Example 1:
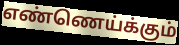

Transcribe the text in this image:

எண்ணெய்க்கும்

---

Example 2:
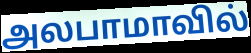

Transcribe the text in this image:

அலபாமாவில்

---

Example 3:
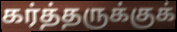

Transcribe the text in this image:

கர்த்தருக்குக்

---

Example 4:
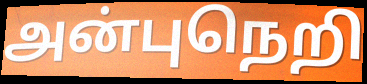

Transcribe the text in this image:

அன்புநெறி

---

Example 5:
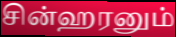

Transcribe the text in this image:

சின்ஹரனும்